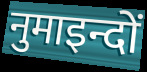
नुमाइन्दों